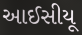
આઈસીયૂ